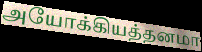
அயோக்கியத்தனமா